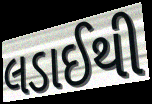
લડાઈથી